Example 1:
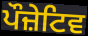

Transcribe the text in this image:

ਪੌਜ਼ੇਟਿਵ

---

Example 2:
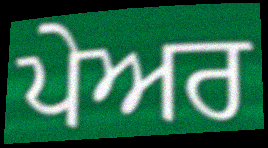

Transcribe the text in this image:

ਪੇਅਰ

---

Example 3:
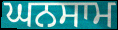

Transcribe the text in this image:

ਘਨਸਾਮ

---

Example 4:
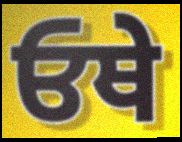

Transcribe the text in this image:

ਓਥੇ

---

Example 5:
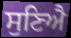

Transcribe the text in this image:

ਸੁਣਿਐ